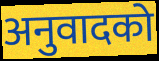
अनुवादको